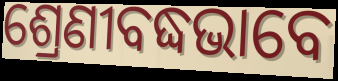
ଶ୍ରେଣୀବଦ୍ଧଭାବେ